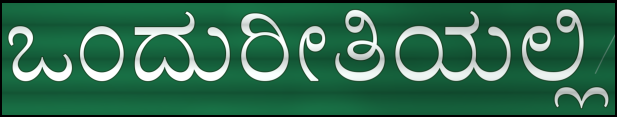
ಒಂದುರೀತಿಯಲ್ಲಿ